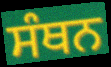
ਸੰਥਨ